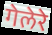
गेलेरे